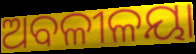
ଅବଳୀଳୟା